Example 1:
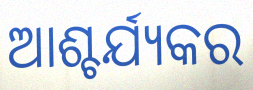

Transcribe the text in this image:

ଆଶ୍ଚର୍ଯ୍ୟକର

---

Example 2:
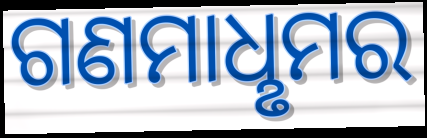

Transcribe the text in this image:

ଗଣମାଧୢମର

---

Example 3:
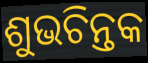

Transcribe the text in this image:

ଶୁଭଚିନ୍ତକ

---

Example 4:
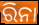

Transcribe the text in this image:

ରିନା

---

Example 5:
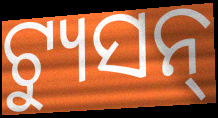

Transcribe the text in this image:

ଟ୍ୟୁସନ୍